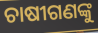
ଚାଷୀଗଣଙ୍କୁ